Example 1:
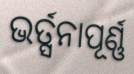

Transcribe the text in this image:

ଭର୍ତ୍ସନାପୂର୍ଣ୍ଣ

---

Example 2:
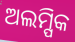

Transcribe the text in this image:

ଅଲମ୍ପିକ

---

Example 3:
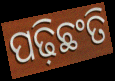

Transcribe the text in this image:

ପଢ଼ିଛଂତି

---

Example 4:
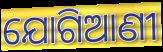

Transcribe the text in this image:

ଯୋଗିଆଣୀ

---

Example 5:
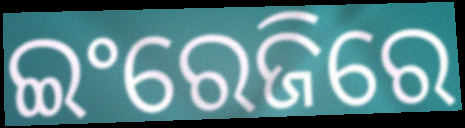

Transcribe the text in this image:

ଇଂରେଜିରେ